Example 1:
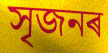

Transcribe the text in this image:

সৃজনৰ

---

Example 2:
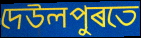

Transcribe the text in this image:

দেউলপুৰতে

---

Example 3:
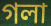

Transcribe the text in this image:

গলা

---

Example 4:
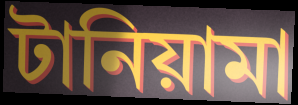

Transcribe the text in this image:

টানিয়ামা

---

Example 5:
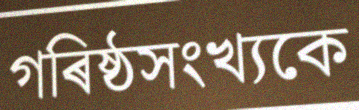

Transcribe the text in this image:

গৰিষ্ঠসংখ্যকে